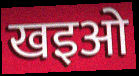
खइओ